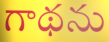
గాథను